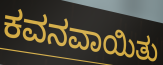
ಕವನವಾಯಿತು